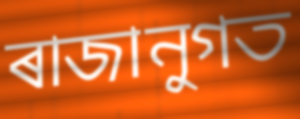
ৰাজানুগত